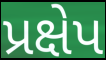
પ્રક્ષેપ